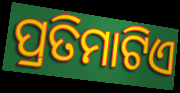
ପ୍ରତିମାଟିଏ